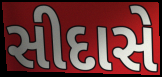
સીદાસે